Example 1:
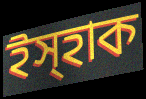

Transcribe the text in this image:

ইস্‌হাক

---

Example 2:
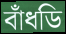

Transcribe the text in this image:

বাঁধডি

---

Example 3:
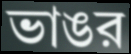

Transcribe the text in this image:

ভাঙর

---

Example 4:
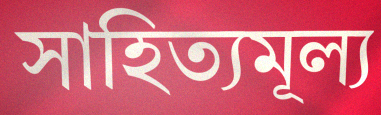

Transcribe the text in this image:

সাহিত্যমূল্য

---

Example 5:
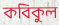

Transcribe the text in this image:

কবিকুল